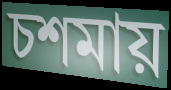
চশমায়